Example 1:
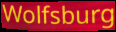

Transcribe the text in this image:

Wolfsburg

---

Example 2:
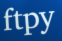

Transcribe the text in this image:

ftpy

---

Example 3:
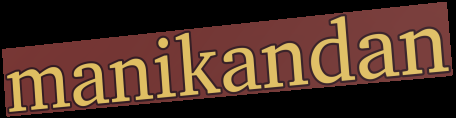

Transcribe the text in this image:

manikandan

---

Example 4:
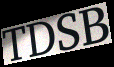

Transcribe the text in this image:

TDSB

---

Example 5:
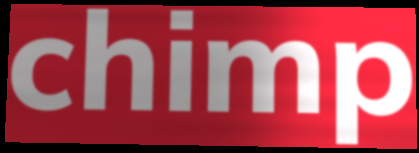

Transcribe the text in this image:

chimp